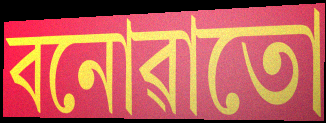
বনোৱাতো